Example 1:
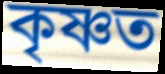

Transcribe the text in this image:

কৃষ্ণত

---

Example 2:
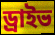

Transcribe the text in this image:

ড্ৰাইভ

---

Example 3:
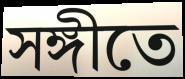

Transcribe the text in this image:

সঙ্গীতে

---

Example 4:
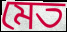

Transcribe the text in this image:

মেত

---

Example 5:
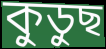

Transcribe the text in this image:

কুডুছ